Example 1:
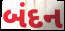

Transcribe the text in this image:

બંદન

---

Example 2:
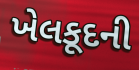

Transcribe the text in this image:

ખેલકૂદની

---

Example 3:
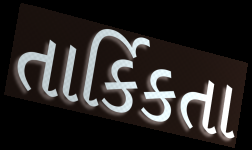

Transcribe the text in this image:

તાર્કિકતા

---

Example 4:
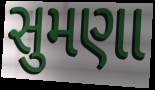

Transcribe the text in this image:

સુમણા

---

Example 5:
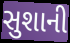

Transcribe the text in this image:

સુશાની